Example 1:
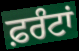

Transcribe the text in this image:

ਫ਼ਰੰਟਾਂ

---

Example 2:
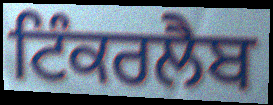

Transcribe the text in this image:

ਟਿੰਕਰਲੈਬ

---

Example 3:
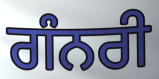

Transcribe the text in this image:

ਗੰਨਰੀ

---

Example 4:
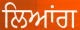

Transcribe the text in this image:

ਲਿਆਂਗ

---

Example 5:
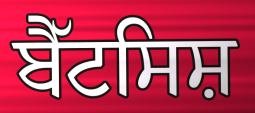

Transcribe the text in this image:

ਬੈੱਟਸਿਸ਼